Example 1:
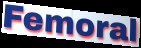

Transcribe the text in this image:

Femoral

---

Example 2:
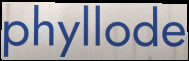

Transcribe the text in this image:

phyllode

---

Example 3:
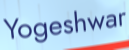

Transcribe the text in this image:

Yogeshwar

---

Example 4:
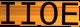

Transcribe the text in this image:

IIOE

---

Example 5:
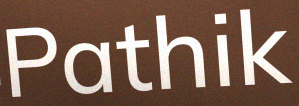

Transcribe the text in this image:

Pathik